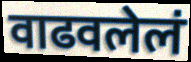
वाढवलेलं